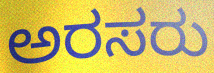
ಅರಸರು